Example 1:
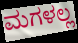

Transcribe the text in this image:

ಮಗಳಲ್ಲ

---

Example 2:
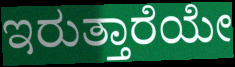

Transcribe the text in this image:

ಇರುತ್ತಾರೆಯೇ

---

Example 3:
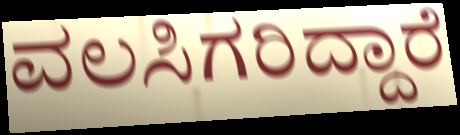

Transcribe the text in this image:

ವಲಸಿಗರಿದ್ದಾರೆ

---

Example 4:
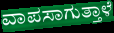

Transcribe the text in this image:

ವಾಪಸಾಗುತ್ತಾಳೆ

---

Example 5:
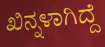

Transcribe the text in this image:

ಖಿನ್ನಳಾಗಿದ್ದೆ